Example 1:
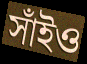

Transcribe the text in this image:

সাঁইও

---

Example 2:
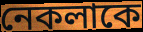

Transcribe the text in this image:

নেকলাকে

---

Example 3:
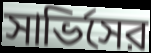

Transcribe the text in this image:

সার্ভিসের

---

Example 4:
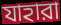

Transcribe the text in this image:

যাহারা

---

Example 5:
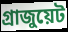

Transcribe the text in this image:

গ্রাজুয়েট